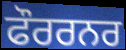
ਫੌਰਰਨਰ